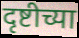
दृष्टीच्या